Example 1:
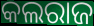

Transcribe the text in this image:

କଲରାଜ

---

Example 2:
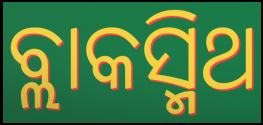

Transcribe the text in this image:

ବ୍ଲାକସ୍ମିଥ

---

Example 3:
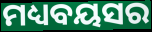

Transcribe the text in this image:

ମଧ୍ୟବୟସର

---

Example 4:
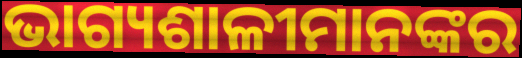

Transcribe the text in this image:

ଭାଗ୍ୟଶାଳୀମାନଙ୍କର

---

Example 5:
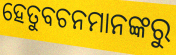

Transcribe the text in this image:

ହେତୁବଚନମାନଙ୍କରୁ